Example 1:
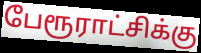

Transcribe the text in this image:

பேரூராட்சிக்கு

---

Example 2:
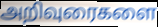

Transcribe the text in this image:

அறிவுரைகளை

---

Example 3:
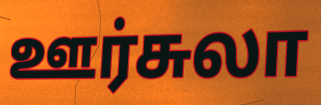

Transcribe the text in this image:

ஊர்சுலா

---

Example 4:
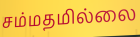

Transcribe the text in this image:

சம்மதமில்லை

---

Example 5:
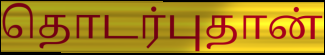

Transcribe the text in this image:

தொடர்புதான்